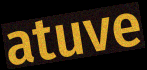
atuve